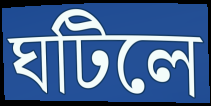
ঘটিলে